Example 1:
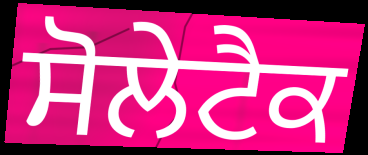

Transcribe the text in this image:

ਸੋਲੇਟੈਕ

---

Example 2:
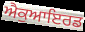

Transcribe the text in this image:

ਐਕੁਆਇਰਡ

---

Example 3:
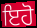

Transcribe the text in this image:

ਇਹੋ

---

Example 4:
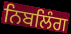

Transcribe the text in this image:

ਨਿਬਲਿੰਗ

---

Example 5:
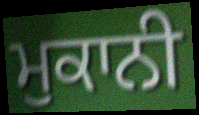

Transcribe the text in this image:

ਮੁਕਾਨੀ